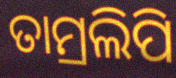
ତାମ୍ରଲିପି